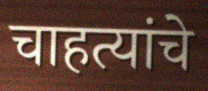
चाहत्यांचे